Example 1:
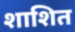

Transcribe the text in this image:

शाशित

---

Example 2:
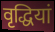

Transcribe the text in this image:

वृद्धियां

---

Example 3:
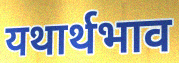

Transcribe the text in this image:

यथार्थभाव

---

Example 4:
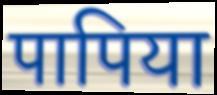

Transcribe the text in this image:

पापिया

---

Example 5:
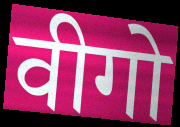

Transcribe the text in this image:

वीगो